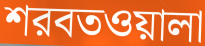
শরবতওয়ালা